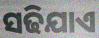
ସଢିଯାଏ